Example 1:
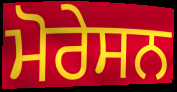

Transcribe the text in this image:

ਮੋਰੇਸਨ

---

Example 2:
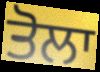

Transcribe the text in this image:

ਤੋਲਾ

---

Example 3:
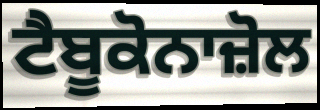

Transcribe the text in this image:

ਟੈਬੂਕੋਨਾਜ਼ੋਲ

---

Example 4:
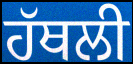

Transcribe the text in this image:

ਹੱਥਲੀ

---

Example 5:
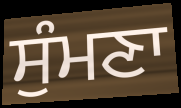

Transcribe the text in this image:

ਸੁੰਮਣਾ